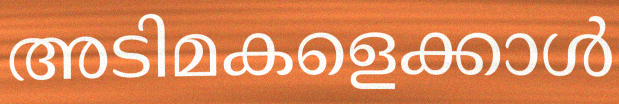
അടിമകളെക്കാൾ